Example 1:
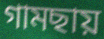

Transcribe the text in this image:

গামছায়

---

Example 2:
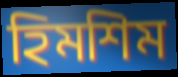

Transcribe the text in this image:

হিমশিম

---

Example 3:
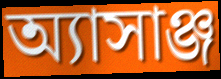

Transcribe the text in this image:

অ্যাসাঞ্জ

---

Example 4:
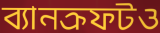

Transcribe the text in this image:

ব্যানক্রফটও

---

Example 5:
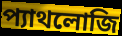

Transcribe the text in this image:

প্যাথলোজি